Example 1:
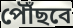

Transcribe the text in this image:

পৌঁছবে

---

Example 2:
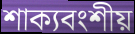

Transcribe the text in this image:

শাক্যবংশীয়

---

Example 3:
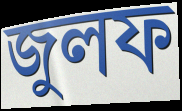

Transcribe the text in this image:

জুলফ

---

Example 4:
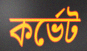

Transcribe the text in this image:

কর্ভেট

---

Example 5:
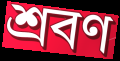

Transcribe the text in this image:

শ্রবণ